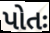
પોતઃ